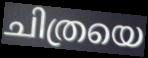
ചിത്രയെ